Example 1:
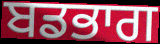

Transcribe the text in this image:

ਬਡਭਾਗ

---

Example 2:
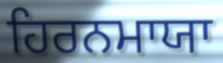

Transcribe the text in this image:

ਹਿਰਨਮਾਯਾ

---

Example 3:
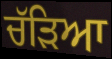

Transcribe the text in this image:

ਚੱੜਿਆ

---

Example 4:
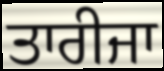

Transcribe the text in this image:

ਤਾਰੀਜਾ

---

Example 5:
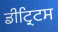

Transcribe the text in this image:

ਡੀਟ੍ਰਿਟਸ